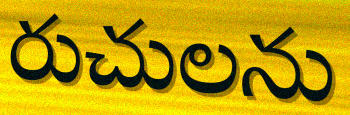
రుచులను